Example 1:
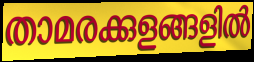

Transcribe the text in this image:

താമരക്കുളങ്ങളിൽ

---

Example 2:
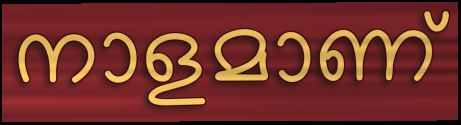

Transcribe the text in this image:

നാളമാണ്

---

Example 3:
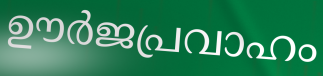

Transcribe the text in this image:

ഊർജപ്രവാഹം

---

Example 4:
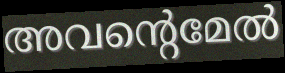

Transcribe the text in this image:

അവന്റെമേൽ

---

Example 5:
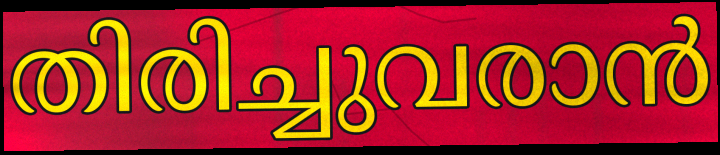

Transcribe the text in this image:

തിരിച്ചുവരാൻ